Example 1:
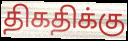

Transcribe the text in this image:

திகதிக்கு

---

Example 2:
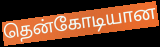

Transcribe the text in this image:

தென்கோடியான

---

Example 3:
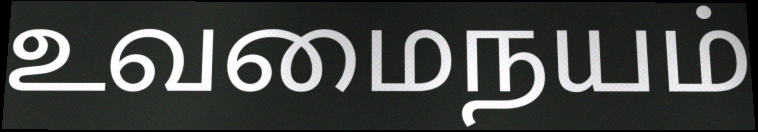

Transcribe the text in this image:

உவமைநயம்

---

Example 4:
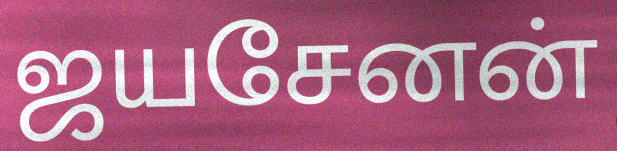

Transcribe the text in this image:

ஜயசேனன்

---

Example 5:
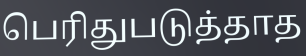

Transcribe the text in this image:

பெரிதுபடுத்தாத